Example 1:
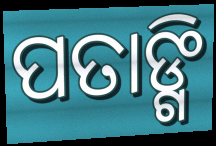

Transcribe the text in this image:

ପତାଙ୍ଗି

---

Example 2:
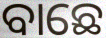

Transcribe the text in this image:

ବାଛେ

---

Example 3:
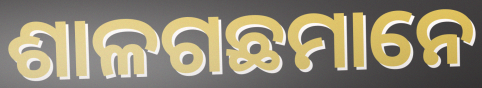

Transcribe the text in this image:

ଶାଳଗଛମାନେ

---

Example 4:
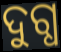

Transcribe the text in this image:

ଦୁଗ୍ଧ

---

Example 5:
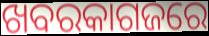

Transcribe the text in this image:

ଖବରକାଗଜରେ